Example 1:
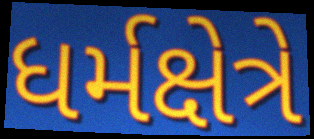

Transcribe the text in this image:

ધર્મક્ષેત્રે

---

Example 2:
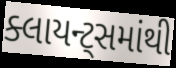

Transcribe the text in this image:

ક્લાયન્ટ્સમાંથી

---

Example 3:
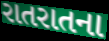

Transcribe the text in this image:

રાતરાતના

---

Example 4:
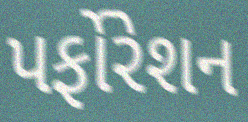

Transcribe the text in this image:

પર્ફોરેશન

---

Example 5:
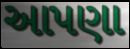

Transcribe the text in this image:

આપણા